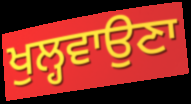
ਖੁਲ੍ਹਵਾਉਣਾ